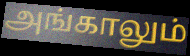
அங்காலும்